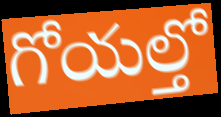
గోయల్తో